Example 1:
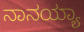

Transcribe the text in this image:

ನಾನಯ್ಯಾ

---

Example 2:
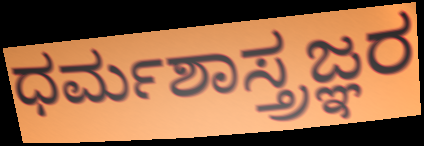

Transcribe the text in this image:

ಧರ್ಮಶಾಸ್ತ್ರಜ್ಞರ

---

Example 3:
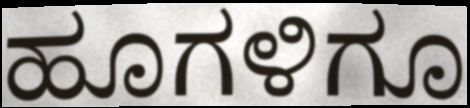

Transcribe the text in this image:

ಹೂಗಳಿಗೂ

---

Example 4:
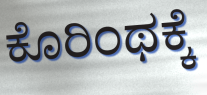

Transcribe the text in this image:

ಕೊರಿಂಥಕ್ಕೆ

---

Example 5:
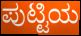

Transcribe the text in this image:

ಪುಟ್ಟಿಯ